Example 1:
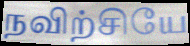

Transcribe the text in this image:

நவிற்சியே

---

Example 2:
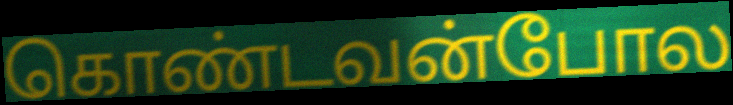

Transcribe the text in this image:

கொண்டவன்போல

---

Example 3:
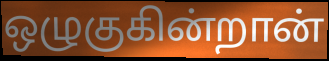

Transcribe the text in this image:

ஒழுகுகின்றான்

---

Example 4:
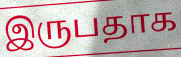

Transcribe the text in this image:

இருபதாக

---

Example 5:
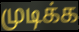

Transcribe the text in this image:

முடிக்க